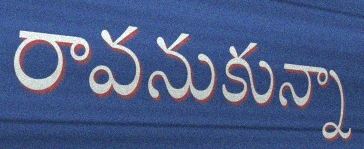
రావనుకున్నా